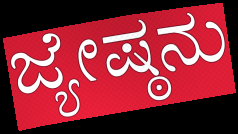
ಜ್ಯೇಷ್ಠನು